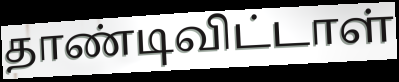
தாண்டிவிட்டாள்